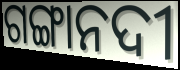
ଗଙ୍ଗାନଦୀ